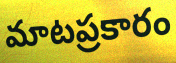
మాటప్రకారం